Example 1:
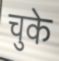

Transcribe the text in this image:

चुके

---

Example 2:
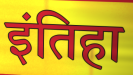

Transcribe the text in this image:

इंतिहा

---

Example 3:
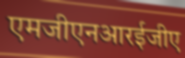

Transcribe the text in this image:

एमजीएनआरईजीए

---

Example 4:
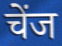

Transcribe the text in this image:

चेंज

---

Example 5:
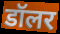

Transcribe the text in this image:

डॉलर